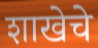
शाखेचे